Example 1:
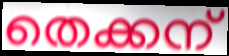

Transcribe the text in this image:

തെക്കന്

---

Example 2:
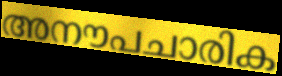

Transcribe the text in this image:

അനൗപചാരിക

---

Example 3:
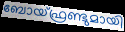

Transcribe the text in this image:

ബോയ്ഫ്രണ്ടുമായി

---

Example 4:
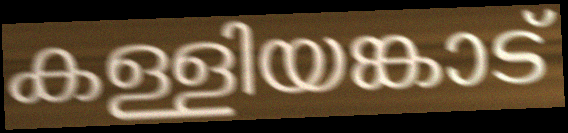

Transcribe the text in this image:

കള്ളിയങ്കാട്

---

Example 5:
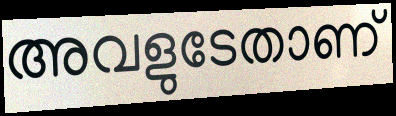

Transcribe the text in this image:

അവളുടേതാണ്